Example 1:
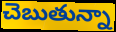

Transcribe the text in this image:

చెబుతున్నా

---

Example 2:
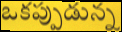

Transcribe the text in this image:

ఒకప్పుడున్న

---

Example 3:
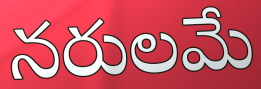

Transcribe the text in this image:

నరులమే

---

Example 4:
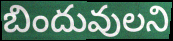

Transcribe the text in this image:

బిందువులని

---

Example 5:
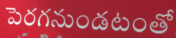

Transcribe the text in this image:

పెరగనుండటంతో